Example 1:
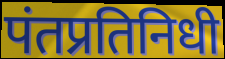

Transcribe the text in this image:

पंतप्रतिनिधी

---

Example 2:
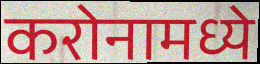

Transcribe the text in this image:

करोनामध्ये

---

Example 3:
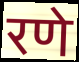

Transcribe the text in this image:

रणे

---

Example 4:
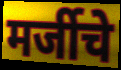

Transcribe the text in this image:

मर्जीचे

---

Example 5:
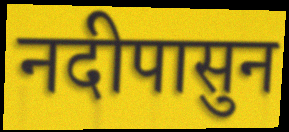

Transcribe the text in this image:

नदीपासुन